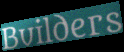
Builders